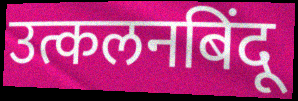
उत्कलनबिंदू